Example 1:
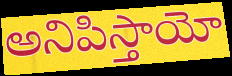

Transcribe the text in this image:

అనిపిస్తాయో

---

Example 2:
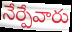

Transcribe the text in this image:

నేర్పేవారు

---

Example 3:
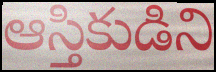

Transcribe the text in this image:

ఆస్తికుడిని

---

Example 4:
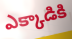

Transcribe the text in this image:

ఎక్కాడికి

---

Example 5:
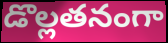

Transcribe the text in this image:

డొల్లతనంగా